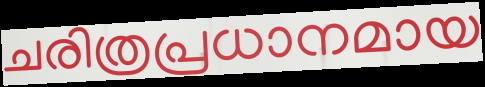
ചരിത്രപ്രധാനമായ